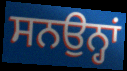
ਸਨਉਨ੍ਹਾਂ